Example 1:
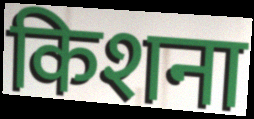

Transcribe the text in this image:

किशना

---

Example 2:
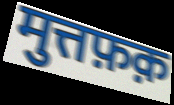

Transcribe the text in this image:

मुत्तफ़क़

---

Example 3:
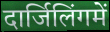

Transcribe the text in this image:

दार्जिलिंगमें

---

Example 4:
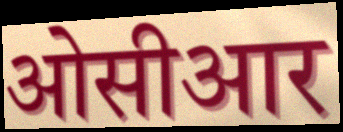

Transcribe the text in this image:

ओसीआर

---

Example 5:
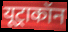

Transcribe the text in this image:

यूट्राकॉन